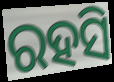
ରହସି